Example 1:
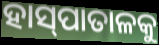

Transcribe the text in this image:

ହାସ୍‍ପାତାଳକୁ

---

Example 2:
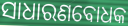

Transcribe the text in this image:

ସାଧାରଣବୋଧକ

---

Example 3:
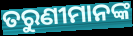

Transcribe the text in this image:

ତରୁଣୀମାନଙ୍କ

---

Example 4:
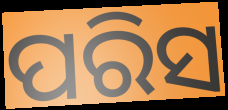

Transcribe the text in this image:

ପରିସ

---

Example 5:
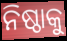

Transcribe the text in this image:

ନିଷ୍ଠାକୁ